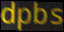
dpbs